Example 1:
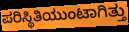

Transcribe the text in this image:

ಪರಿಸ್ಥಿತಿಯುಂಟಾಗಿತ್ತು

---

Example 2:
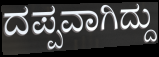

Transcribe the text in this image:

ದಪ್ಪವಾಗಿದ್ದು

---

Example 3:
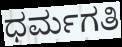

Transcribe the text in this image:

ಧರ್ಮಗತಿ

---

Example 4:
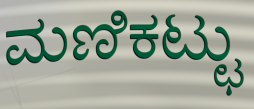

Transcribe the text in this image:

ಮಣಿಕಟ್ಟು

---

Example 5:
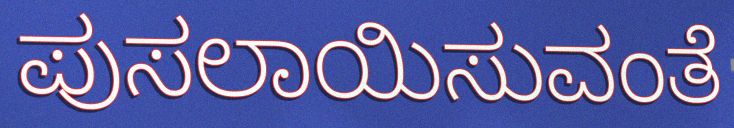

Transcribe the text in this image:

ಪುಸಲಾಯಿಸುವಂತೆ